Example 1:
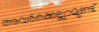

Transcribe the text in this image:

അവർക്കെല്ലാമുണ്ട്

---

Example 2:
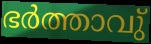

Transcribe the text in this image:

ഭർത്താവു്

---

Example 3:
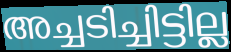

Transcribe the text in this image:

അച്ചടിച്ചിട്ടില്ല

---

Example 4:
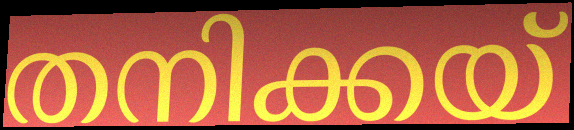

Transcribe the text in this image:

തനിക്കയ്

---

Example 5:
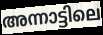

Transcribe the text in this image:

അന്നാട്ടിലെ